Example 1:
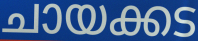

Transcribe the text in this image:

ചായക്കട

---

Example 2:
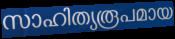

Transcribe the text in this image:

സാഹിത്യരൂപമായ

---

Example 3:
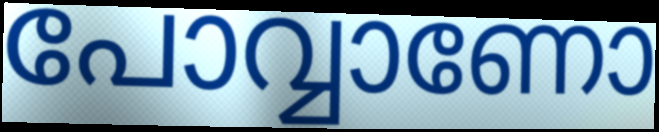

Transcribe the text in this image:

പോവ്വാണോ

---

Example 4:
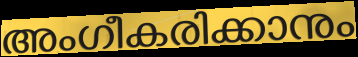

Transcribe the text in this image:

അംഗീകരിക്കാനും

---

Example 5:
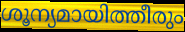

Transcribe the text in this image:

ശൂന്യമായിത്തീരും